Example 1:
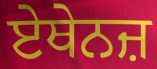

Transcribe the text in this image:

ਏਥੇਨਜ਼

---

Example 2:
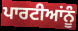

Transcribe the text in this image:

ਪਾਰਟੀਆਂਨੂੰ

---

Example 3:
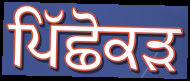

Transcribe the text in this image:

ਪਿੱਛੋਕੜ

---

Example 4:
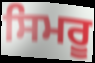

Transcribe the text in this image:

ਸਿਮਰੂ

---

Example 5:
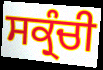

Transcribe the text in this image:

ਸਕ੍ਰੰਚੀ